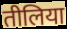
तीलिया